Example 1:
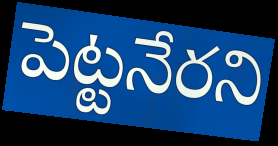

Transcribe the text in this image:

పెట్టనేరని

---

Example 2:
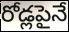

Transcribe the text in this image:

రోడ్లపైనే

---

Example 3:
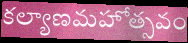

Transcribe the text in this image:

కల్యాణమహోత్సవం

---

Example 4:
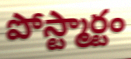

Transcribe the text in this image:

పోస్ట్మార్టం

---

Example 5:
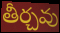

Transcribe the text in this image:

తీర్చవు